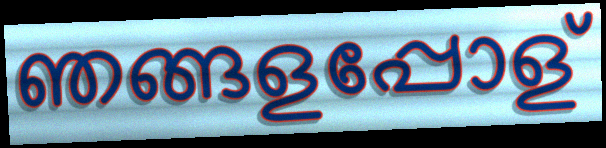
ഞങ്ങളപ്പോള്